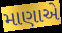
માણાએ